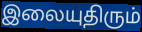
இலையுதிரும்